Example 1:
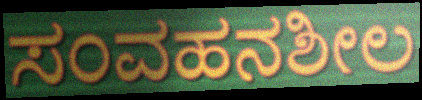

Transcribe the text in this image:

ಸಂವಹನಶೀಲ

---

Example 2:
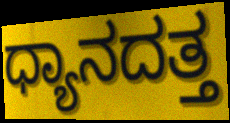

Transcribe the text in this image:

ಧ್ಯಾನದತ್ತ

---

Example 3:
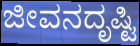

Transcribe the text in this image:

ಜೀವನದೃಷ್ಟಿ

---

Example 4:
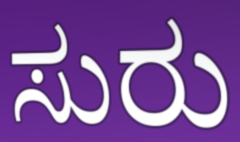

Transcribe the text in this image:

ಸುರು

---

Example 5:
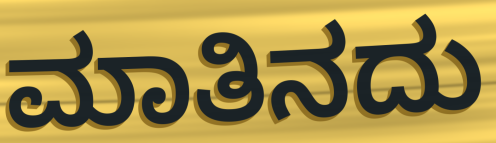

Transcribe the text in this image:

ಮಾತಿನದು